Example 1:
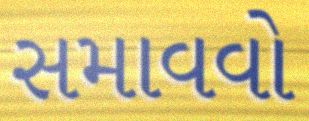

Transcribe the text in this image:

સમાવવો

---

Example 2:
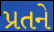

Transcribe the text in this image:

પ્રતને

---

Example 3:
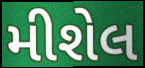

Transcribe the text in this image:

મીશેલ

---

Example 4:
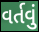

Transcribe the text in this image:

વર્તવું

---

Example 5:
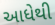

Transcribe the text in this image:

આધેથી